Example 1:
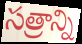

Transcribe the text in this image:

సత్రాన్ని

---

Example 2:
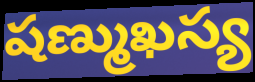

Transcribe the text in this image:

షణ్ముఖస్య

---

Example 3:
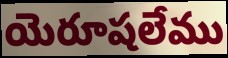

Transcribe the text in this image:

యెరూషలేము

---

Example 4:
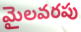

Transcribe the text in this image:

మైలవరపు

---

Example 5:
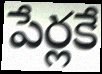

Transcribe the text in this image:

పేర్లకే